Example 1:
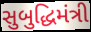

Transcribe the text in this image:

સુબુદ્ધિમંત્રી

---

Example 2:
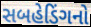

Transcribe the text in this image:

સબહેડિંગનો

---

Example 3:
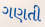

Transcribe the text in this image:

ગણતી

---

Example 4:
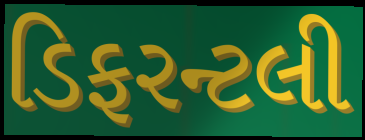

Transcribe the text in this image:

ડિફરન્ટલી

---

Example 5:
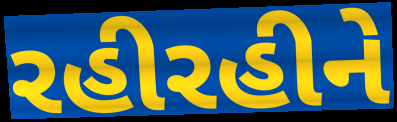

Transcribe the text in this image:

રહીરહીને